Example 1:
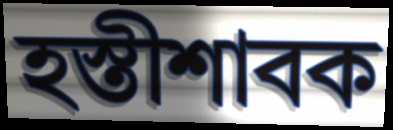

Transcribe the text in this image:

হস্তীশাবক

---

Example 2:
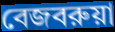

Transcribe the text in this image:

বেজবরুয়া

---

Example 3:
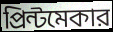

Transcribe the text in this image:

প্রিন্টমেকার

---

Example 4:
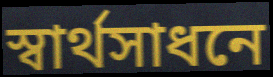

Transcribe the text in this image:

স্বার্থসাধনে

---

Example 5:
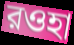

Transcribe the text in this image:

রওহা